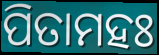
ପିତାମହଃ